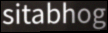
sitabhog